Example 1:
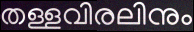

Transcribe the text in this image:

തള്ളവിരലിനും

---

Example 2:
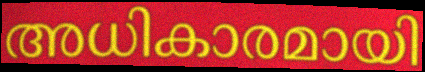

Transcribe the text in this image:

അധികാരമായി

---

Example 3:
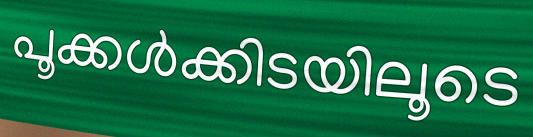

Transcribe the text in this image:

പൂക്കൾക്കിടയിലൂടെ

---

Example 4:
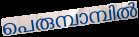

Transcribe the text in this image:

പെരുമ്പാമ്പിൽ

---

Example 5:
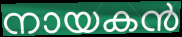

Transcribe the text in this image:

നായകൻ